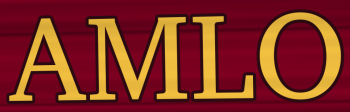
AMLO